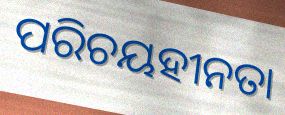
ପରିଚୟହୀନତା